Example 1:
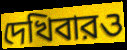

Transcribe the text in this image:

দেখিবারও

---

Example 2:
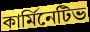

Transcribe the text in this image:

কার্মিনেটিভ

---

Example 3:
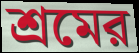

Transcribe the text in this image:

শ্রমের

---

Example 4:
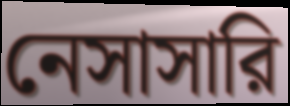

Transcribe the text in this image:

নেসাসারি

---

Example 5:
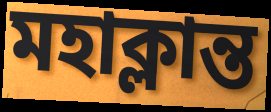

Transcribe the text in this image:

মহাক্লান্ত